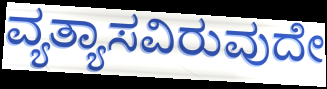
ವ್ಯತ್ಯಾಸವಿರುವುದೇ